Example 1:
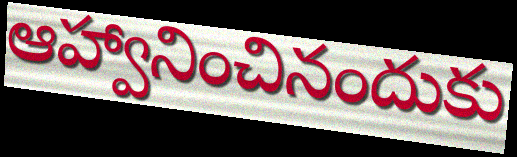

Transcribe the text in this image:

ఆహ్వానించినందుకు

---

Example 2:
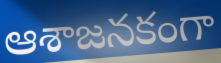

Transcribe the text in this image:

ఆశాజనకంగా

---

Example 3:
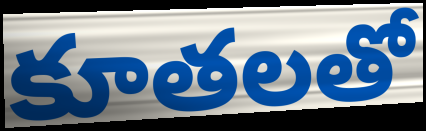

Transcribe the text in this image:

కూతలతో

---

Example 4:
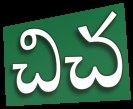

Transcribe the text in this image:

చిచ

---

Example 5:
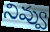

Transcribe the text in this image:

నివ్వు